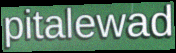
pitalewad